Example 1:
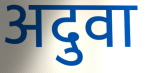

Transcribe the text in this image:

अदुवा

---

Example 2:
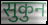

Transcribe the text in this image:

सुकुन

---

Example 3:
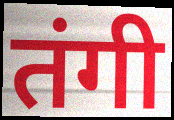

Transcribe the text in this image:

तंगी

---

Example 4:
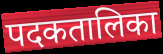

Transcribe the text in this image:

पदकतालिका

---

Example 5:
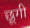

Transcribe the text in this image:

छूगी